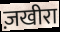
ज़खीरा